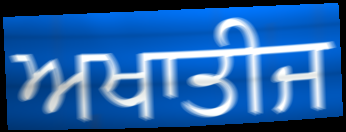
ਅਖਾਤੀਜ